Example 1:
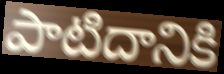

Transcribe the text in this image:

పాటిదానికి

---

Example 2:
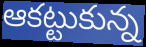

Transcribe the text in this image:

ఆకట్టుకున్న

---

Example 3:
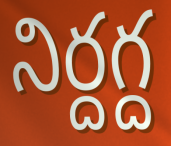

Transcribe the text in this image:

నిర్దగ్ద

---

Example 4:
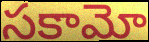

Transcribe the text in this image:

సకామో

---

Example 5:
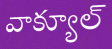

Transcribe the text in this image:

వాక్యూల్